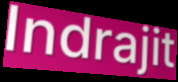
Indrajit